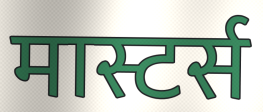
मास्टर्स